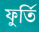
ফুৰ্তি